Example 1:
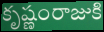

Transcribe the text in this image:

కృష్ణంరాజుకి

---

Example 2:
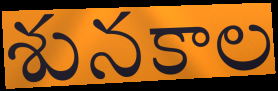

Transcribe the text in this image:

శునకాల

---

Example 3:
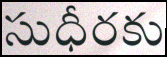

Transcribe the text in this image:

సుధీరకు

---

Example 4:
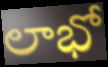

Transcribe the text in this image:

లాభో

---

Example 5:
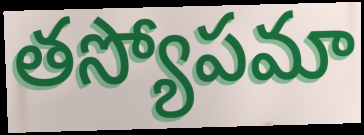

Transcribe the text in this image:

తస్యోపమా